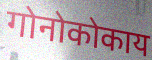
गोनोकोकाय